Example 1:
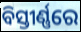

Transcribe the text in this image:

ବିସ୍ତୀର୍ଣ୍ଣରେ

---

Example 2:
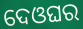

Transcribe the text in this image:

ଦେଓଘର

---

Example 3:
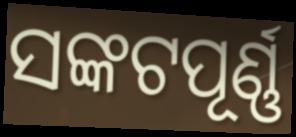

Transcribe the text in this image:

ସଙ୍କଟପୂର୍ଣ୍ଣ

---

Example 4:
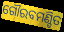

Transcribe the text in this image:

ଗୌରବମଣ୍ଡିତ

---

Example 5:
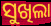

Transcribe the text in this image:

ସୁଖିଲା